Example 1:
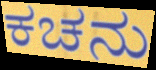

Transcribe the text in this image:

ಕಚನು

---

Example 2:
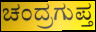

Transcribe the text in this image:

ಚಂದ್ರಗುಪ್ತ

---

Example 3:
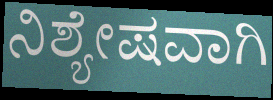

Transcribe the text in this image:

ನಿಶ್ಯೇಷವಾಗಿ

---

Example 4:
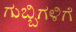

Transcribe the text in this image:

ಗುಬ್ಬಿಗಳಿಗೆ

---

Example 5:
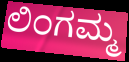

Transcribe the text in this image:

ಲಿಂಗಮ್ಮ